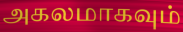
அகலமாகவும்